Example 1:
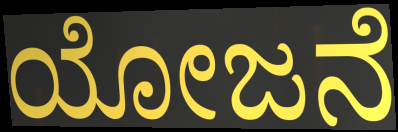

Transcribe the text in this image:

ಯೋಜನೆ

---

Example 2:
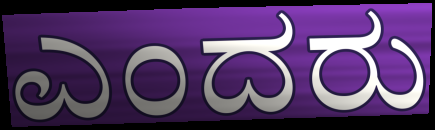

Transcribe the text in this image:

ಎಂದರು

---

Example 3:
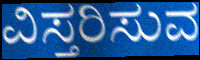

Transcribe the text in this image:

ವಿಸ್ತರಿಸುವ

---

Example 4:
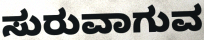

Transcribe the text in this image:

ಸುರುವಾಗುವ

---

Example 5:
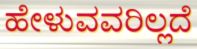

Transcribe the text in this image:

ಹೇಳುವವರಿಲ್ಲದೆ